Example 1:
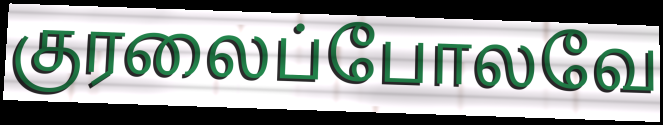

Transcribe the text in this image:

குரலைப்போலவே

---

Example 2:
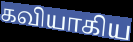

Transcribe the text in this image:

கவியாகிய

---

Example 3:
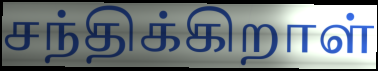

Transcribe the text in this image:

சந்திக்கிறாள்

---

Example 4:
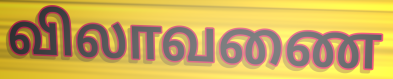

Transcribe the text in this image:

விலாவணை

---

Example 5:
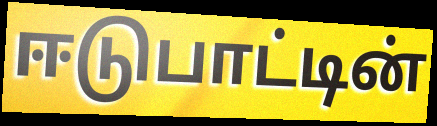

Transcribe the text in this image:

ஈடுபாட்டின்